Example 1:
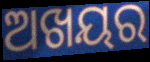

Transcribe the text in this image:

ଅଖୟର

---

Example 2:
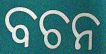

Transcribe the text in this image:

ବଚନ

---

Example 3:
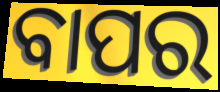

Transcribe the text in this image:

ବାପର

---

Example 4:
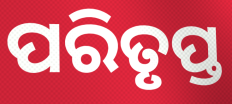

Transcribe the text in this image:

ପରିତୃପ୍ତ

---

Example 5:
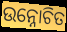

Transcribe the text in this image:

ଉନ୍ନୋଚିତ